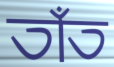
তাঁত